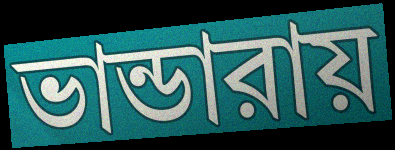
ভান্ডারায়